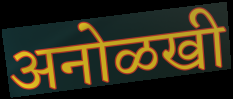
अनोळखी